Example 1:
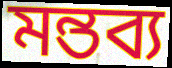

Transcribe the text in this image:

মন্তব্য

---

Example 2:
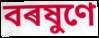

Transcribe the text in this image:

বৰষুণে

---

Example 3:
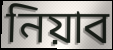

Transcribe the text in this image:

নিয়াব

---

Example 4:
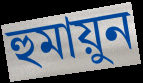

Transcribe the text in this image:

হুমায়ুন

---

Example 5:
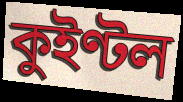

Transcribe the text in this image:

কুইণ্টল